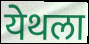
येथला